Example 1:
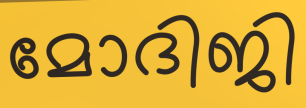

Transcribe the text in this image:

മോദിജി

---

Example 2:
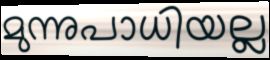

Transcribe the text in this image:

മുന്നുപാധിയല്ല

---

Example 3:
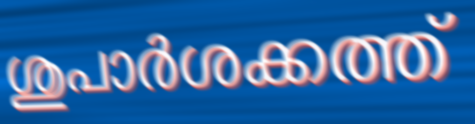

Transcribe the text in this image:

ശുപാർശക്കത്ത്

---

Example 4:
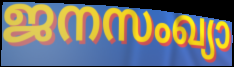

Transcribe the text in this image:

ജനസംഖ്യാ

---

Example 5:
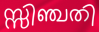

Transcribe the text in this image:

സ്സിഞ്ചതി